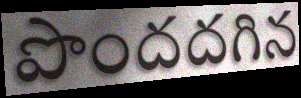
పొందదగిన